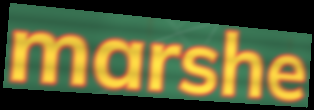
marshe